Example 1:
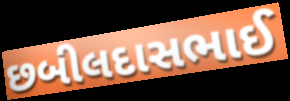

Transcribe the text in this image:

છબીલદાસભાઈ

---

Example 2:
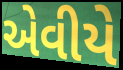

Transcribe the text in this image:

એવીયે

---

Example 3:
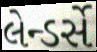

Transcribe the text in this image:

લેન્ડર્સે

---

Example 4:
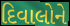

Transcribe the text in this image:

દિવાલોને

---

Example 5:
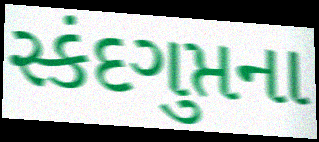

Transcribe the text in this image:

સ્કંદગુપ્તના